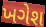
ખગેશ